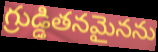
గ్రుడ్డితనమైనను